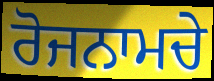
ਰੋਜਨਾਮਚੇ